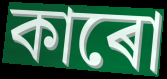
কাৰো